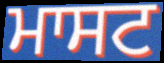
ਮਾਸਟ